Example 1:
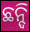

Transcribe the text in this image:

ଛନ୍ଦି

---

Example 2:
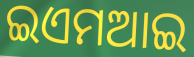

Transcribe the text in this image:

ଇଏମଆଇ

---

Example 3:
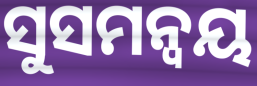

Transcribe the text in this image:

ସୁସମନ୍ୱୟ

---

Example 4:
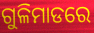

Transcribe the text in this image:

ଗୁଳିମାଡରେ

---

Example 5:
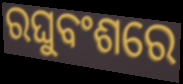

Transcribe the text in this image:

ରଘୁବଂଶରେ